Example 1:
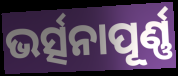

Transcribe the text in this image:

ଭର୍ତ୍ସନାପୂର୍ଣ୍ଣ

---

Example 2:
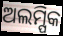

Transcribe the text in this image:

ଅଲମ୍ପିକ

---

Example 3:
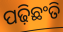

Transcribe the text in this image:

ପଢ଼ିଛଂତି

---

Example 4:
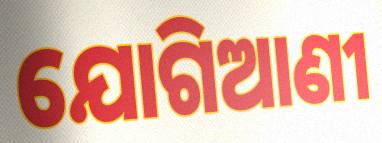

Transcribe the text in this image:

ଯୋଗିଆଣୀ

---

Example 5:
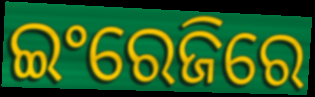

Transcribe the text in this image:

ଇଂରେଜିରେ